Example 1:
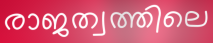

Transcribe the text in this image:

രാജത്വത്തിലെ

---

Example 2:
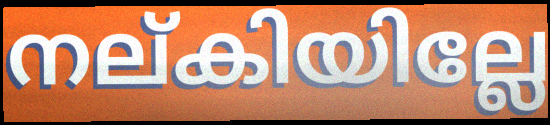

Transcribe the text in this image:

നല്കിയില്ലേ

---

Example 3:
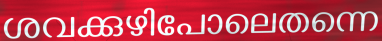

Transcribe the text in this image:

ശവക്കുഴിപോലെതന്നെ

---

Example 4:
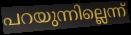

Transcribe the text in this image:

പറയുന്നില്ലെന്ന്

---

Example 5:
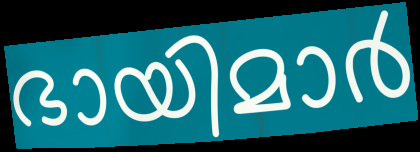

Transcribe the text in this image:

ഭായിമാർ